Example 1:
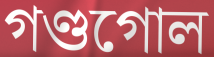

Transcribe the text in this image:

গণ্ডগোল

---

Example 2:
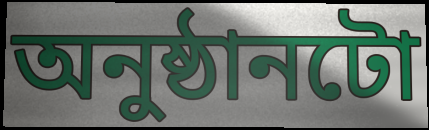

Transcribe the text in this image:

অনুষ্ঠানটো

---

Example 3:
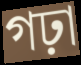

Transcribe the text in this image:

গঢ়া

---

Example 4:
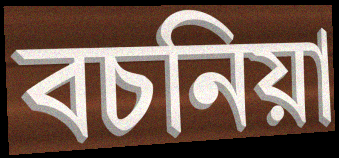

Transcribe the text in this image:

বচনিয়া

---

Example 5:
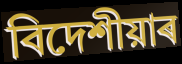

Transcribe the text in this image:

বিদেশীয়াৰ